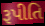
રૂપીતિ